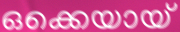
ഒക്കെയായ്